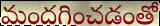
మందగించడంతో